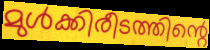
മുൾക്കിരീടത്തിന്റെ